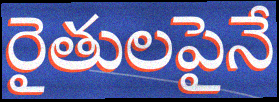
రైతులపైనే